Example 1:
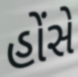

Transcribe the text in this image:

હોંસે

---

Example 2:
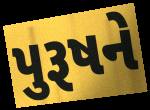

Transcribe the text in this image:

પુરૂષને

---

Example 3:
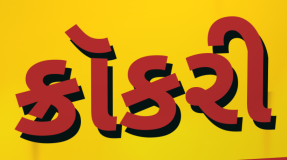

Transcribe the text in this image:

ક્રૉકરી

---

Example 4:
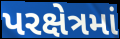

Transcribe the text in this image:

પરક્ષેત્રમાં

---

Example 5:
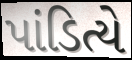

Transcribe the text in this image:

પાંડિત્યે